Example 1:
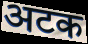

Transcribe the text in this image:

अटक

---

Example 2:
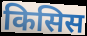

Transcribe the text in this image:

किसिस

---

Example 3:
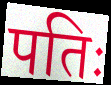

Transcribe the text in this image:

पतिः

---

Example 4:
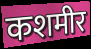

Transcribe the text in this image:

कशमीर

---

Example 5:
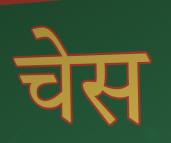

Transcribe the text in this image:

चेस